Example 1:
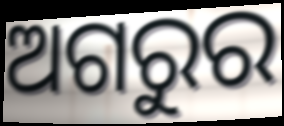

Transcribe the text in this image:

ଅଗରୁର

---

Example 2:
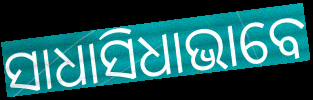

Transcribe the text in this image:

ସାଧାସିଧାଭାବେ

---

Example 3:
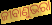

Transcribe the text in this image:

ଜୀବାଣୁଭରା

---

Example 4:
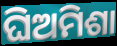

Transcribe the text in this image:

ଘିଅମିଶା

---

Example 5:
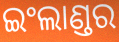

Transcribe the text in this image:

ଇଂଲାଣ୍ଡର